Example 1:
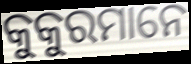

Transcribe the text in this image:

କୁକୁରମାନେ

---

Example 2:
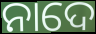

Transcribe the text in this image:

ନାଦେ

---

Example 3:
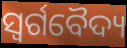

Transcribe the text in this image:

ସ୍ୱର୍ଗବୈଦ୍ୟ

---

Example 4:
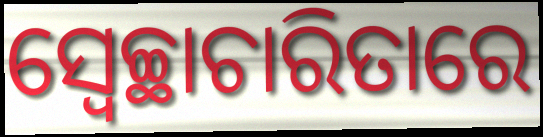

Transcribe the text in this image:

ସ୍ୱେଚ୍ଛାଚାରିତାରେ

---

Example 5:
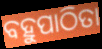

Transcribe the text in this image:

ବହୁପାଠିତା